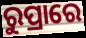
ରୁପ୍ରାରେ